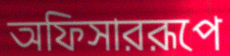
অফিসাররূপে